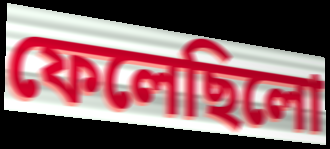
ফেলেছিলো